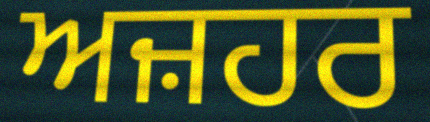
ਅਜ਼ਹਰ